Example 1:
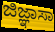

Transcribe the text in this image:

ಜಿಜ್ಞಾಸಾ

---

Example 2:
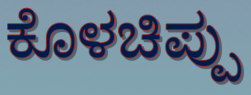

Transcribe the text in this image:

ಕೊಳಚಿಪ್ಪು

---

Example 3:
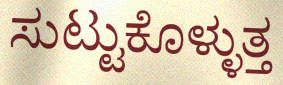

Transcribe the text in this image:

ಸುಟ್ಟುಕೊಳ್ಳುತ್ತ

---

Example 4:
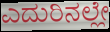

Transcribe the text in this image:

ಎದುರಿನಲ್ಲೇ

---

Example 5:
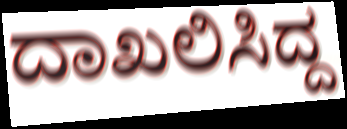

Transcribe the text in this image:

ದಾಖಲಿಸಿದ್ದ